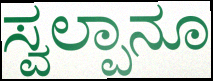
ಸ್ವಲ್ಪಾನೂ